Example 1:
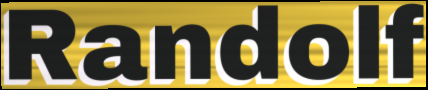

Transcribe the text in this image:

Randolf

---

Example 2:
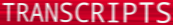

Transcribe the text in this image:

TRANSCRIPTS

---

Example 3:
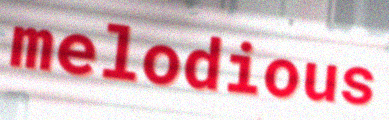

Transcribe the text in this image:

melodious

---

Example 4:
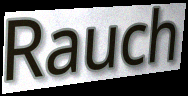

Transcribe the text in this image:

Rauch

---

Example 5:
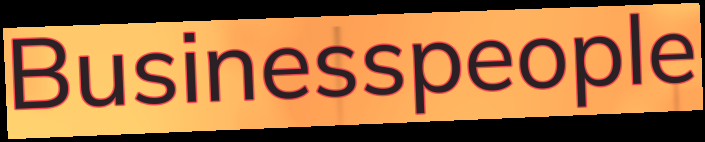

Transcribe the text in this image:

Businesspeople